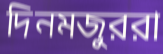
দিনমজুররা